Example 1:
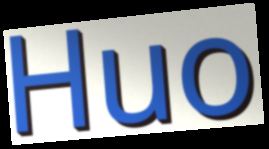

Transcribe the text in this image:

Huo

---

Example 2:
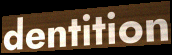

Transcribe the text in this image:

dentition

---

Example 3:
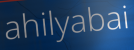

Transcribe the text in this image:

ahilyabai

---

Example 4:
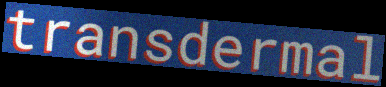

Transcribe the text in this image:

transdermal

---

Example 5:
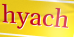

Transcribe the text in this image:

hyach